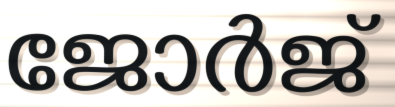
ജോർജ്